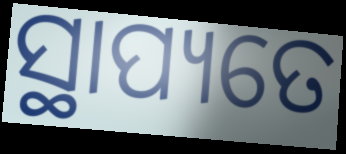
ସ୍ଥାପ୍ୟତେ